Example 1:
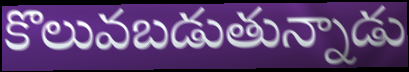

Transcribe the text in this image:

కొలువబడుతున్నాడు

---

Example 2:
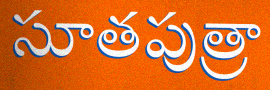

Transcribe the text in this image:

సూతపుత్రా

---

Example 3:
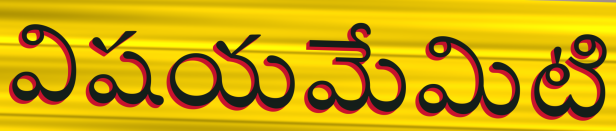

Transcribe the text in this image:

విషయమేమిటి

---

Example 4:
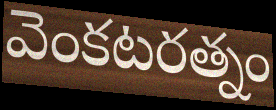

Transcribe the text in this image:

వెంకటరత్నం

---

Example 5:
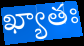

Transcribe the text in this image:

ఖ్యాతః